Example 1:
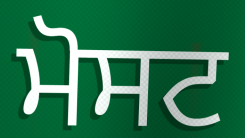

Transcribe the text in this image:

ਮੋਸਟ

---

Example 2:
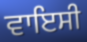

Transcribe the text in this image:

ਵਾਇਸੀ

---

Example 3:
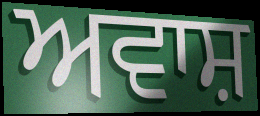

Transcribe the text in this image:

ਅਵਾਸ਼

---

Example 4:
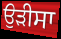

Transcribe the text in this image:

ਉੜੀਸਾ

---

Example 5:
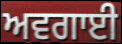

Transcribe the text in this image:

ਅਵਗਾਈ